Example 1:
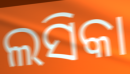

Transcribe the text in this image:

ଲସିକା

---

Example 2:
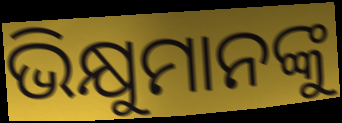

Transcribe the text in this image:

ଭିକ୍ଷୁମାନଙ୍କୁ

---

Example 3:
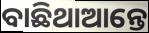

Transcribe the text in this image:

ବାଛିଥାଆନ୍ତେ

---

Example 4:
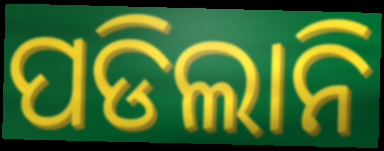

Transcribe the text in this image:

ପଡିଲାନି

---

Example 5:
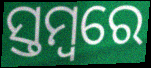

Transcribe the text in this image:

ସ୍ତମ୍ବରେ